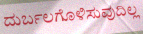
ದುರ್ಬಲಗೊಳಿಸುವುದಿಲ್ಲ